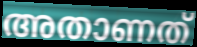
അതാണത്